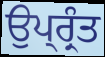
ਉਪ੍ਰ੍ਰੰਤ